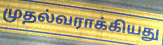
முதல்வராக்கியது